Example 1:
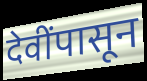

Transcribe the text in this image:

देवींपासून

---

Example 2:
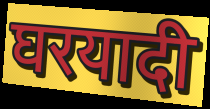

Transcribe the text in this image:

घरयादी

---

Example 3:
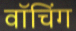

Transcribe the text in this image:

वॉचिंग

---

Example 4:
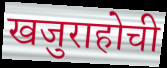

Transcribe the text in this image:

खजुराहोची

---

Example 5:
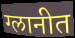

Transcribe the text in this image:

ग्लानीत